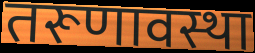
तरूणावस्था